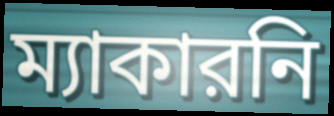
ম্যাকারনি